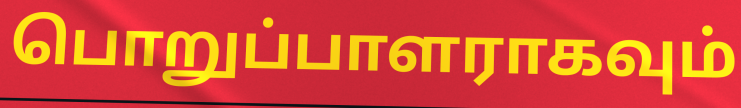
பொறுப்பாளராகவும்